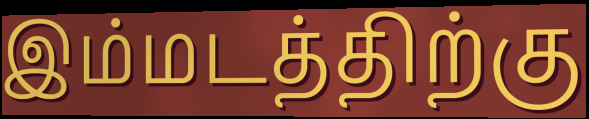
இம்மடத்திற்கு